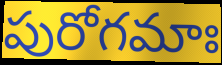
పురోగమాః